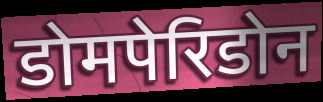
डोमपेरिडोन